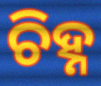
ଚିହ୍ନ